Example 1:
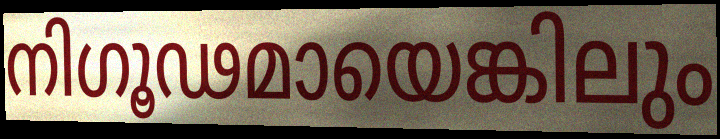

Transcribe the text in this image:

നിഗൂഢമായെങ്കിലും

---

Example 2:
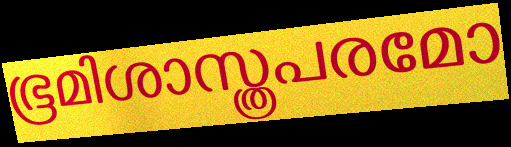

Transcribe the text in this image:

ഭൂമിശാസ്ത്രപരമോ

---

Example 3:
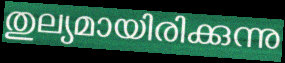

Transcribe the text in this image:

തുല്യമായിരിക്കുന്നു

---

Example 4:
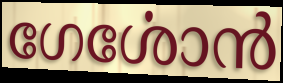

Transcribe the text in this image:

ഗേൎശോൻ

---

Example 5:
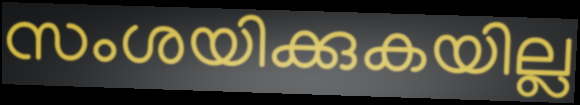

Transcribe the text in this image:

സംശയിക്കുകയില്ല